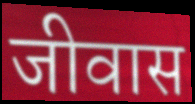
जीवास